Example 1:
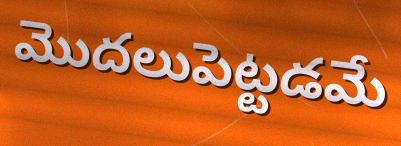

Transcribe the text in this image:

మొదలుపెట్టడమే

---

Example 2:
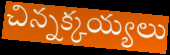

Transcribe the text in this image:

చిన్నక్కయ్యలు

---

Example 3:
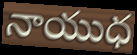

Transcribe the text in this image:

నాయుధ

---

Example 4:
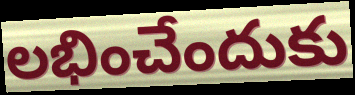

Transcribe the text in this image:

లభించేందుకు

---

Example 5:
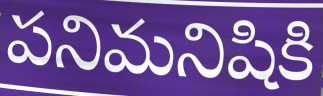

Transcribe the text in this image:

పనిమనిషికి